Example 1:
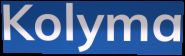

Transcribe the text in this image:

Kolyma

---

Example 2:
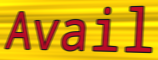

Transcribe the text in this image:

Avail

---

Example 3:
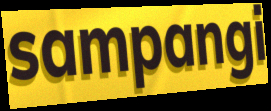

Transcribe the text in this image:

sampangi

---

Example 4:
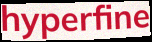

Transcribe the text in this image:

hyperfine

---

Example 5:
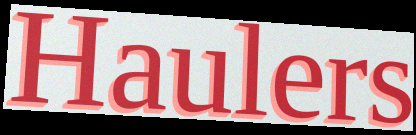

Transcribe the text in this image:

Haulers